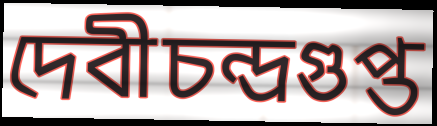
দেবীচন্দ্রগুপ্ত